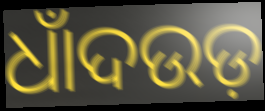
ଧାଁଦଉଡ଼